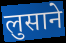
लुसाने